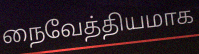
நைவேத்தியமாக